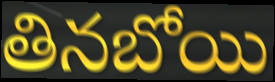
తినబోయి